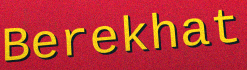
Berekhat